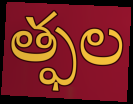
త్ఫల